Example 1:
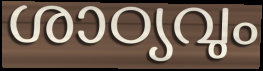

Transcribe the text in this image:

ശാഠ്യവും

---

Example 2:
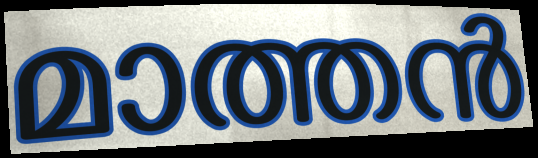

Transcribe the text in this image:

മാത്തൻ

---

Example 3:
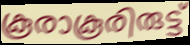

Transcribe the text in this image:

കൂരാകൂരിരുട്ട്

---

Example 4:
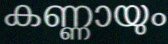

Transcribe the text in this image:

കണ്ണായും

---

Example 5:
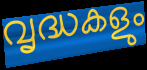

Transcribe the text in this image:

വൃദ്ധകളും